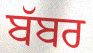
ਬੱਬਰ